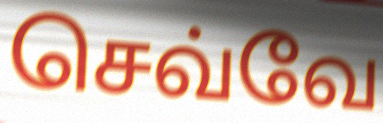
செவ்வே